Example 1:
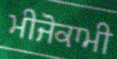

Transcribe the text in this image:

ਮੀਜੋਕਾਮੀ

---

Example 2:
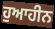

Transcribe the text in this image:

ਹੁਆਹੀਨ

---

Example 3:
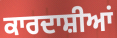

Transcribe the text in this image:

ਕਾਰਦਾਸ਼ੀਆਂ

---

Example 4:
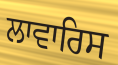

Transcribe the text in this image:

ਲਾਵਾਰਿਸ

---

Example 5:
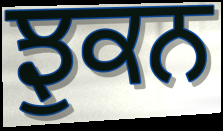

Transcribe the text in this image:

ਝੁਕਨ